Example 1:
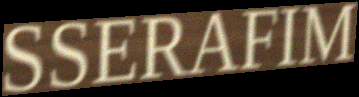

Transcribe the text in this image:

SSERAFIM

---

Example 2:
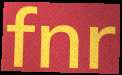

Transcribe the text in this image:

fnr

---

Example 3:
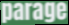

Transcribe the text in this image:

parage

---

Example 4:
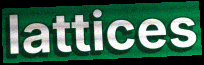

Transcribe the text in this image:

lattices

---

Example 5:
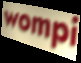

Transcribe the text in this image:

wompi